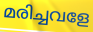
മരിച്ചവളേ